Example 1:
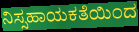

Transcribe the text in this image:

ನಿಸ್ಸಹಾಯಕತೆಯಿಂದ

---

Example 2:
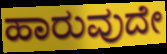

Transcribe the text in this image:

ಹಾರುವುದೇ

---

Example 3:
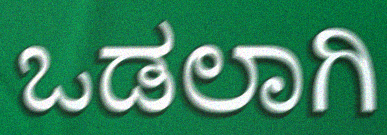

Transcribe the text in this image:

ಒಡಲಾಗಿ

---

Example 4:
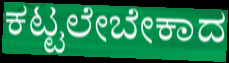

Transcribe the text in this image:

ಕಟ್ಟಲೇಬೇಕಾದ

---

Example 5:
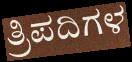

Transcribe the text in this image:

ತ್ರಿಪದಿಗಳ